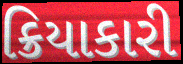
ક્રિયાકારી